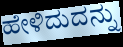
ಹೇಳಿದುದನ್ನು